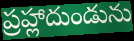
ప్రహ్లాదుండును